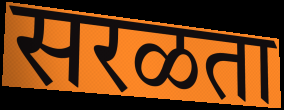
सरळता